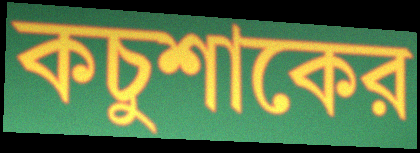
কচুশাকের